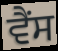
ਵੈਂਸ